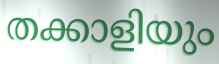
തക്കാളിയും